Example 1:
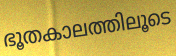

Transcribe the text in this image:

ഭൂതകാലത്തിലൂടെ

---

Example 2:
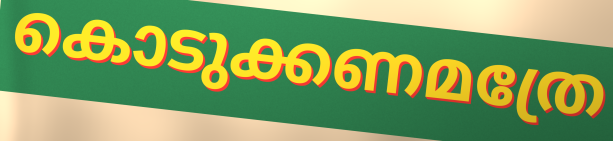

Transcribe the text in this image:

കൊടുക്കണമത്രേ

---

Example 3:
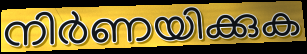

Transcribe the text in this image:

നിർണയിക്കുക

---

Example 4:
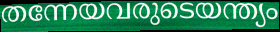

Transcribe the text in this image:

തന്നേയവരുടെയന്ത്യം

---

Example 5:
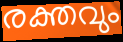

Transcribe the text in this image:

രക്തവും